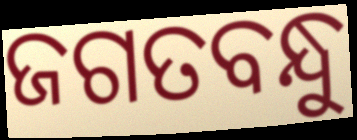
ଜଗତବନ୍ଧୁ